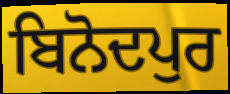
ਬਿਨੋਦਪੁਰ